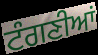
ਟੰਗਣੀਆਂ